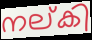
നല്കി